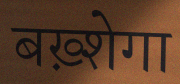
बख़्शेगा